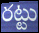
రట్టు